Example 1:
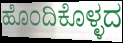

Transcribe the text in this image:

ಹೊಂದಿಕೊಳ್ಳದ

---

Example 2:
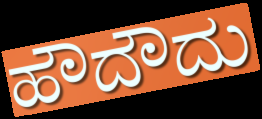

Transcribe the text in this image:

ಹೌದೌದು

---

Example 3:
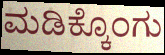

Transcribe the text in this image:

ಮಡಿಕ್ಕೊಂಗು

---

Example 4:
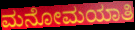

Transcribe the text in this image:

ಮನೋಮಯಾತಿ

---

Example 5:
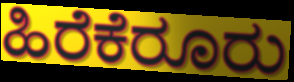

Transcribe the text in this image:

ಹಿರೆಕೆರೂರು